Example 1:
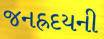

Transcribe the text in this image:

જનહ્રદયની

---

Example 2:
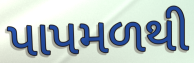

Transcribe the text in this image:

પાપમળથી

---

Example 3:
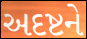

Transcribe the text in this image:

અદષ્ટને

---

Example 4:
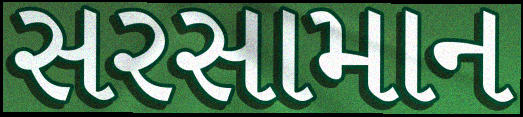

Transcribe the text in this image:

સરસામાન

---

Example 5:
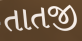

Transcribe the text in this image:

તાતજી